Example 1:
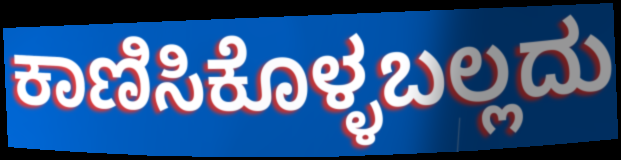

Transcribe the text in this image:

ಕಾಣಿಸಿಕೊಳ್ಳಬಲ್ಲದು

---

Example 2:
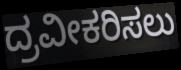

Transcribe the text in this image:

ದ್ರವೀಕರಿಸಲು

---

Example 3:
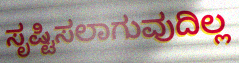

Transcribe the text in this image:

ಸೃಷ್ಟಿಸಲಾಗುವುದಿಲ್ಲ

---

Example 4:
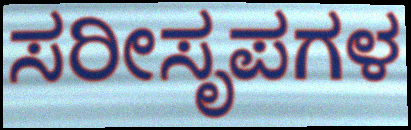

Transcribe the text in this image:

ಸರೀಸೃಪಗಳ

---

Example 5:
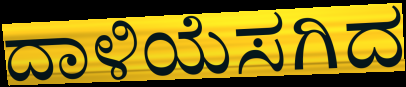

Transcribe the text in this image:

ದಾಳಿಯೆಸಗಿದ